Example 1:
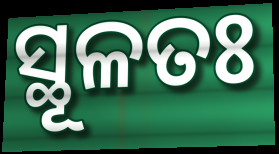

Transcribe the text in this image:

ସ୍ଥୂଳତଃ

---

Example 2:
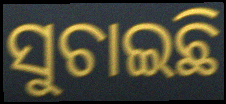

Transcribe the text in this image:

ସୁଚାଇଛି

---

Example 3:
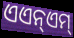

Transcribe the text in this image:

ଏଏନ୍ଏମ୍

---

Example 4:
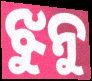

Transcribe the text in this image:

ଝୁନୁ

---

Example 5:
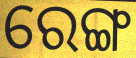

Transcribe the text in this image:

ରେଙ୍ଗ